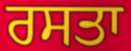
ਰਸਤਾ